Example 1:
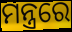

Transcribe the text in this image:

ମନ୍ତ୍ରରେ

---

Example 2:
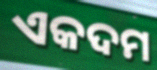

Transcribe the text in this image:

ଏକଦମ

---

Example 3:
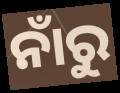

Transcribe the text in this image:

ନାଁରୁ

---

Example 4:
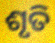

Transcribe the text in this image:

ଶୃତି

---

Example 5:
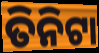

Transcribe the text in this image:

ତିନିଟା